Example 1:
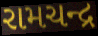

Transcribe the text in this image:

રામચન્દ્ર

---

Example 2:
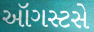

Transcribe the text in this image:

ઑગસ્ટસે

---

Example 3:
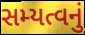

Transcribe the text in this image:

સમ્યત્વનું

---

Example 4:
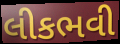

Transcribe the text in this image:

લીકભવી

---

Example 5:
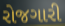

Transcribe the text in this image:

રોજગારી